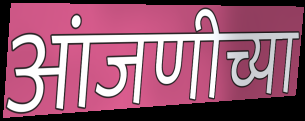
आंजणीच्या